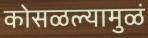
कोसळल्यामुळं